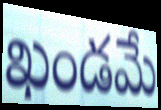
ఖండమే